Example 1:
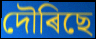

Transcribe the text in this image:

দৌৰিছে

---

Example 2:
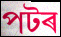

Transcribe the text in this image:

পটৰ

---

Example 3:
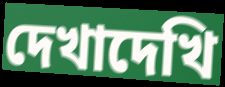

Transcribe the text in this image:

দেখাদেখি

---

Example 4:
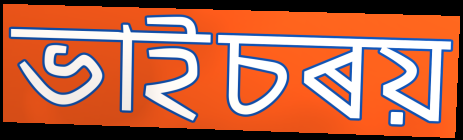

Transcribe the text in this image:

ভাইচৰয়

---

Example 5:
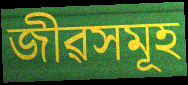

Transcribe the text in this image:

জীৱসমূহ